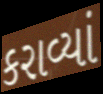
કરાવ્યાં